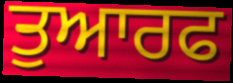
ਤੁਆਰਫ